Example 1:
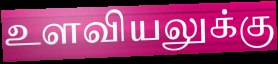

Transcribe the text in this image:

உளவியலுக்கு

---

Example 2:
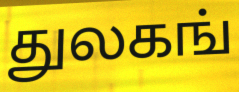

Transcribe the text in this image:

துலகங்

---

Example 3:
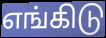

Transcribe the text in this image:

எங்கிடு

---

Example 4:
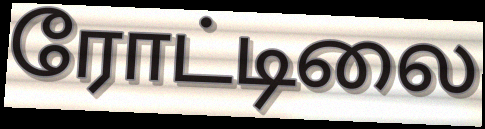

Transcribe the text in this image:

ரோட்டிலை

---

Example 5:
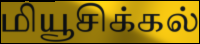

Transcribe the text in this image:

மியூசிக்கல்